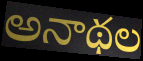
అనాథల